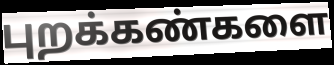
புறக்கண்களை